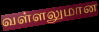
வள்ளலுமான